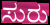
ಸುರು